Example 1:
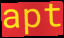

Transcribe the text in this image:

apt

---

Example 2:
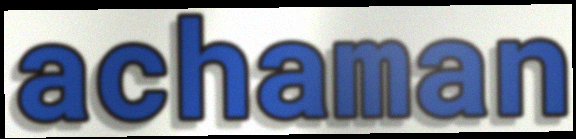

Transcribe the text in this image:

achaman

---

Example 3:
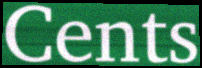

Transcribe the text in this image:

Cents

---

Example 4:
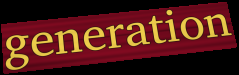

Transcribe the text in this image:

generation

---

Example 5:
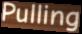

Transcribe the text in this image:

Pulling